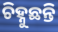
ଚିହ୍ନୁଛନ୍ତି